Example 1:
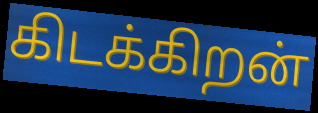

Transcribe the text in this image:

கிடக்கிறன்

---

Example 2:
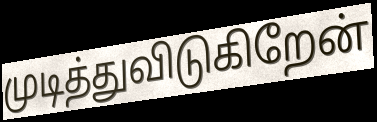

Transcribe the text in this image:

முடித்துவிடுகிறேன்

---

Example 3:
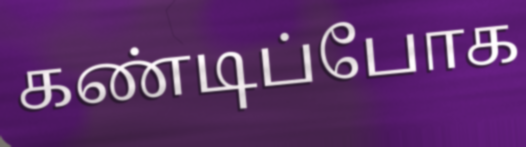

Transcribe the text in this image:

கண்டிப்போக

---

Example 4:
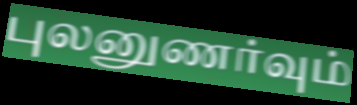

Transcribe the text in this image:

புலனுணர்வும்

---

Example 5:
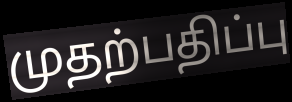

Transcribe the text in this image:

முதற்பதிப்பு